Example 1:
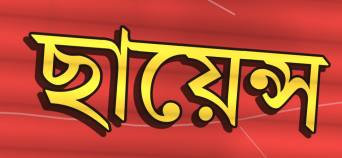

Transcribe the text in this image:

ছায়েন্স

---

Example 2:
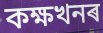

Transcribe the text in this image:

কক্ষখনৰ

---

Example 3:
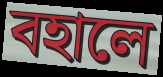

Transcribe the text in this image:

বহালে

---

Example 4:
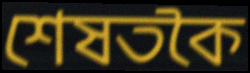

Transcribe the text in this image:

শেষতকৈ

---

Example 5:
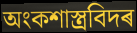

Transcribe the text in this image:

অংকশাস্ত্ৰবিদৰ